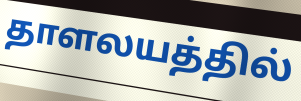
தாளலயத்தில்